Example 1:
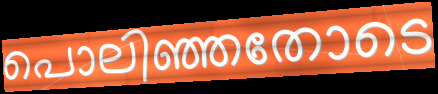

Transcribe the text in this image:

പൊലിഞ്ഞതോടെ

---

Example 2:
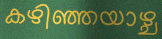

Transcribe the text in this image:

കഴിഞ്ഞയാഴ്ച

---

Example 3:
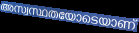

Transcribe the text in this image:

അസ്വസ്ഥതയോടെയാണ്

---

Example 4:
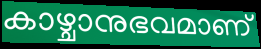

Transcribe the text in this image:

കാഴ്ചാനുഭവമാണ്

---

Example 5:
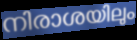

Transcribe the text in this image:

നിരാശയിലും